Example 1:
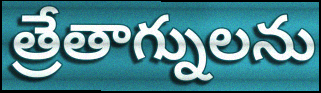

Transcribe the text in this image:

త్రేతాగ్నులను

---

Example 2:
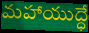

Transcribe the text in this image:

మహాయుద్ధే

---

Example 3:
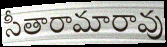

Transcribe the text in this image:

సీతారామారావు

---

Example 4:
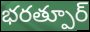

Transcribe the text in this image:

భరత్పూర్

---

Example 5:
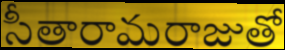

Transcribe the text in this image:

సీతారామరాజుతో